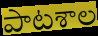
పాటశాల